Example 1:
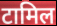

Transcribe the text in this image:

टामिल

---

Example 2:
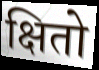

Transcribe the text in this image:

क्षितो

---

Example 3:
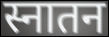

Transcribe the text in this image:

स्नातन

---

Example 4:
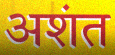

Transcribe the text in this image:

अशंत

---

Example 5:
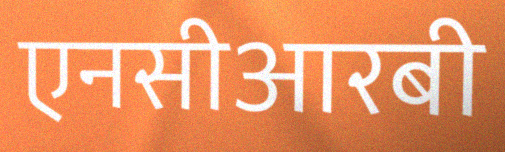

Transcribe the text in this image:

एनसीआरबी